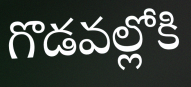
గొడవల్లోకి